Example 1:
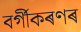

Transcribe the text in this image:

বৰ্গীকৰণৰ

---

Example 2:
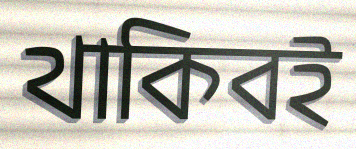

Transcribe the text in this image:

থাকিবই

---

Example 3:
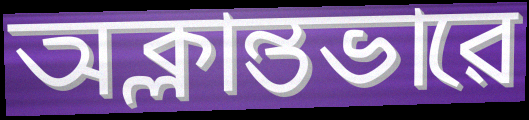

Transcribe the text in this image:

অক্লান্তভাৱে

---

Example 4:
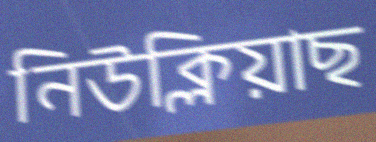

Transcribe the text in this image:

নিউক্লিয়াছ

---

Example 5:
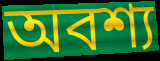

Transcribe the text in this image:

অবশ্য